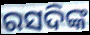
ରସଦିଙ୍କ